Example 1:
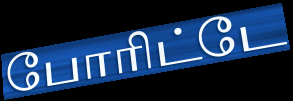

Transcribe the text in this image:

போரிட்டே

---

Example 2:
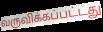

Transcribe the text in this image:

வருவிக்கப்பட்டது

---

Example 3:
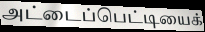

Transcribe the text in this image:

அட்டைப்பெட்டியைக்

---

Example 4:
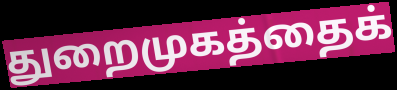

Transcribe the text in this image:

துறைமுகத்தைக்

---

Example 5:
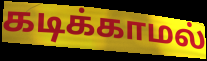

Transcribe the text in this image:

கடிக்காமல்